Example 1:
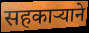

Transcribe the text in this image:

सहकाऱ्याने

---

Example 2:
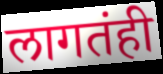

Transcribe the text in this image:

लागतंही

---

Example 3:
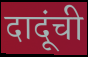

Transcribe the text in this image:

दादूंची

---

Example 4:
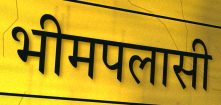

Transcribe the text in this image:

भीमपलासी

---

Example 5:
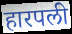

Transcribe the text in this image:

हारपली